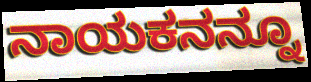
ನಾಯಕನನ್ನೂ